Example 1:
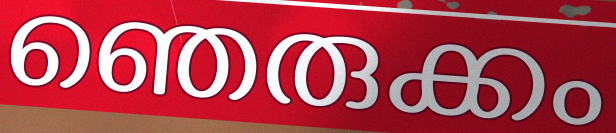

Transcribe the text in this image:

ഞെരുക്കം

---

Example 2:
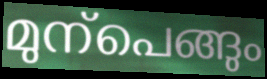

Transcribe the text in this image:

മുന്പെങ്ങും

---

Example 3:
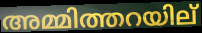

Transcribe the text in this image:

അമ്മിത്തറയില്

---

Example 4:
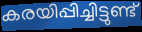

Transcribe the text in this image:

കരയിപ്പിച്ചിട്ടുണ്ട്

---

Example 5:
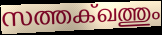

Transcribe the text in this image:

സത്തക്ഖത്തും